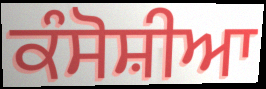
ਕੰਸੋਸ਼ੀਆ